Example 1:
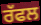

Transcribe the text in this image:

ਰੱਫਲ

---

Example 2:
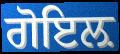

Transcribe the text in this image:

ਗੋਇਲ਼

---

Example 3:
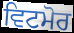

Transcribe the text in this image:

ਵਿਟਮੋਰ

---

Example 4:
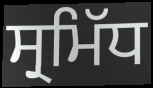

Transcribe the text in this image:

ਸ੍ਰਮਿੱਧ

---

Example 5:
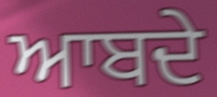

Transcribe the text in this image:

ਆਬਦੇ